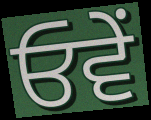
ਓਵੇਂ